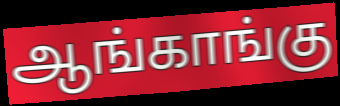
ஆங்காங்கு